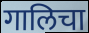
गालिचा